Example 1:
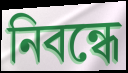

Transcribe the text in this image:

নিবন্ধে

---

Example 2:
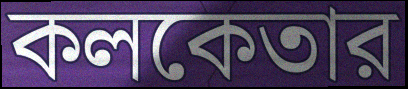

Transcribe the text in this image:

কলকেতার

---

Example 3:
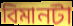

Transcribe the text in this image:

বিমানটা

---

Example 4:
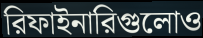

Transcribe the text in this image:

রিফাইনারিগুলোও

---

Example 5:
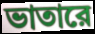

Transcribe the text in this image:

ভাতারে